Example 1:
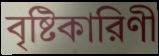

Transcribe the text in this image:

বৃষ্টিকারিণী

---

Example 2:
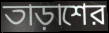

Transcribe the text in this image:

তাড়াশের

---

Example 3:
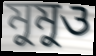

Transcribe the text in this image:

মুমুও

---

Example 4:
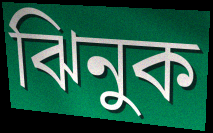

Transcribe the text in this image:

ঝিনুক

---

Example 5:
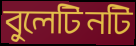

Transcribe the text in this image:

বুলেটিনটি